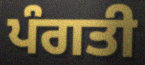
ਪੰਗਤੀ